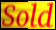
Sold